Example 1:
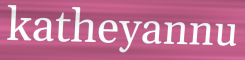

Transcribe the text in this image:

katheyannu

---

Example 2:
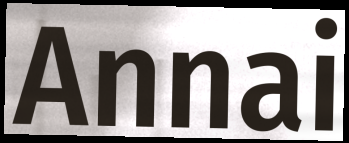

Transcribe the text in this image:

Annai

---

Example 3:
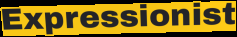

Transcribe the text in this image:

Expressionist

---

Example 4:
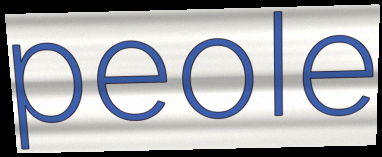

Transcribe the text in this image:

peole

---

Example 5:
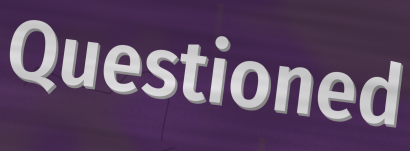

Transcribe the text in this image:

Questioned